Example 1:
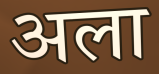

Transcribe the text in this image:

अला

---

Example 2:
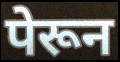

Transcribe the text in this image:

पेरून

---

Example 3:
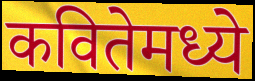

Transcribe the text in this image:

कवितेमध्ये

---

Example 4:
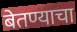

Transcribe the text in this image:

बेतण्याचा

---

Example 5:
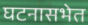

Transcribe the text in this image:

घटनासभेत